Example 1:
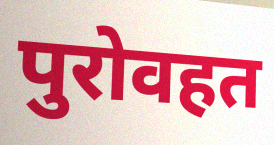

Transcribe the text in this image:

पुरोवहत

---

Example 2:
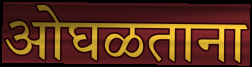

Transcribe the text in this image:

ओघळताना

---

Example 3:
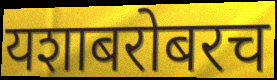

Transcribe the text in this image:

यशाबरोबरच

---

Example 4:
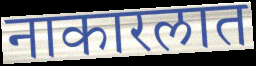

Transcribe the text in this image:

नाकारलात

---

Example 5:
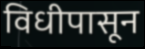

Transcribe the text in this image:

विधीपासून